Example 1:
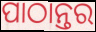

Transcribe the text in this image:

ପାଠାନ୍ତର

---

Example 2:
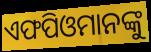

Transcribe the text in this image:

ଏଫପିଓମାନଙ୍କୁ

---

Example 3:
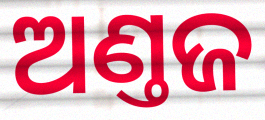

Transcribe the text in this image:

ଅଣ୍ତଜ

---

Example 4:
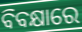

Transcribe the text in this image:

ବିବକ୍ଷାରେ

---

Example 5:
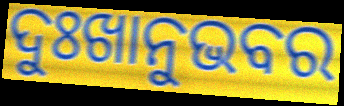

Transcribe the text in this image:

ଦୁଃଖାନୁଭବର